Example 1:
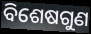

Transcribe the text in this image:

ବିଶେଷଗୁଣ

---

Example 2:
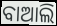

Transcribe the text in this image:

ବାଆଲି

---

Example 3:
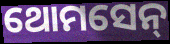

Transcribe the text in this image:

ଥୋମସେନ୍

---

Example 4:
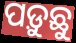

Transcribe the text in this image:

ପଡ଼ୁଛୁ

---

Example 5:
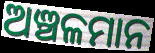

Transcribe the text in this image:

ଅଞ୍ଚଳମାନ